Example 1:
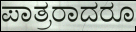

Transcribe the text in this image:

ಪಾತ್ರರಾದರೂ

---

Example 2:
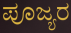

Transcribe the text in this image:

ಪೂಜ್ಯರ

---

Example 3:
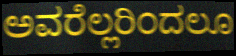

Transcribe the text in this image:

ಅವರೆಲ್ಲರಿಂದಲೂ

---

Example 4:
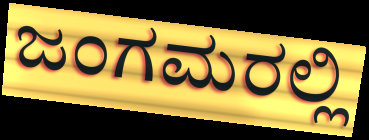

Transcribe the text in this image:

ಜಂಗಮರಲ್ಲಿ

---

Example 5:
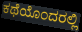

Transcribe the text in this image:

ಕಥೆಯೊಂದರಲ್ಲಿ